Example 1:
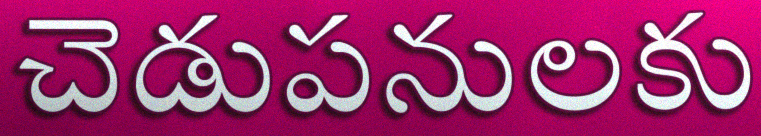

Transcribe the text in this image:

చెడుపనులకు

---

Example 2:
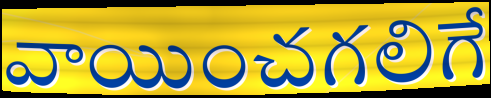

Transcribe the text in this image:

వాయించగలిగే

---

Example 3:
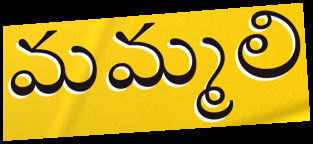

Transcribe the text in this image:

మమ్మలి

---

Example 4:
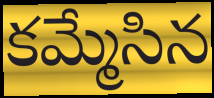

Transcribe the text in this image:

కమ్మేసిన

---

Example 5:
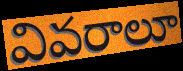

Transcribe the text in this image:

వివరాలూ